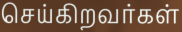
செய்கிறவர்கள்